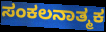
ಸಂಕಲನಾತ್ಮಕ